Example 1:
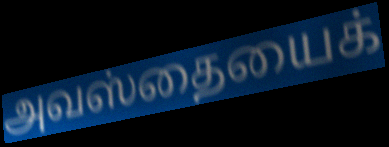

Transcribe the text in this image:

அவஸ்தையைக்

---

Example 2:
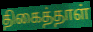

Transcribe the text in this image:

திகைத்தாள்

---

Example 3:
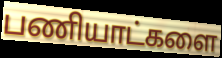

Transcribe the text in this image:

பணியாட்களை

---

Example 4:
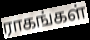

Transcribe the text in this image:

ராகங்கள்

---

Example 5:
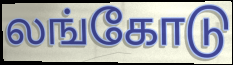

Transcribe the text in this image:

லங்கோடு